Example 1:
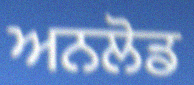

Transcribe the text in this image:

ਅਨਲੋਡ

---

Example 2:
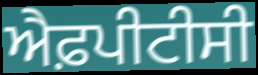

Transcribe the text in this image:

ਐਫ਼ਪੀਟੀਸੀ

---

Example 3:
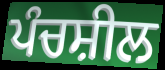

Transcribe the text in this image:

ਪੰਚਸ਼ੀਲ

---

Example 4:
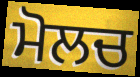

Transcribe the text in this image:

ਮੋਲਚ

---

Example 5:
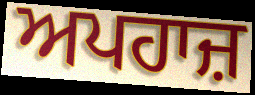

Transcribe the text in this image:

ਅਪਹਾਜ਼